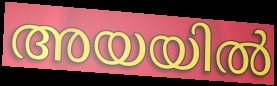
അയയിൽ